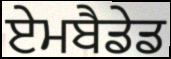
ਏਮਬੈਡੇਡ